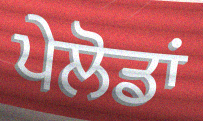
ਪੇਲੋਡਾਂ